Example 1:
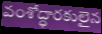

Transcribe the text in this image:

వంశోద్ధారకులైన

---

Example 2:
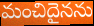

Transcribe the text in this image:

మంచిదైనను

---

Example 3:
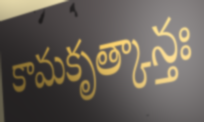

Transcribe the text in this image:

కామకృత్కాన్తః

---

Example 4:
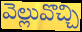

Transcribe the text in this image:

వెల్లువొచ్చి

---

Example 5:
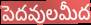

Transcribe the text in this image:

పెదవులమీద